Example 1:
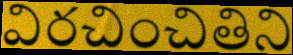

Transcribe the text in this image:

విరచించితిని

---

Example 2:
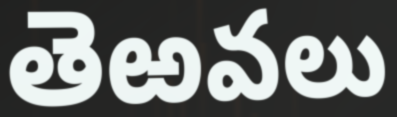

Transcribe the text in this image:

తెఱవలు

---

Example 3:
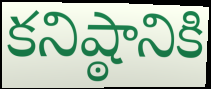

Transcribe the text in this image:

కనిష్ఠానికి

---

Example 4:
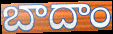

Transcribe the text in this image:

బాదాం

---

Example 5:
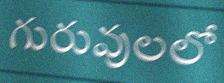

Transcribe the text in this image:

గురువులలో